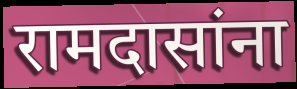
रामदासांना